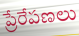
ప్రేరేపణలు